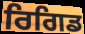
ਰਿਗਿਡ